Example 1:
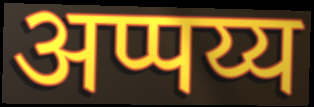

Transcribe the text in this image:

अप्पय्य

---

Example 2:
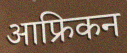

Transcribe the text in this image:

आफ्रिकन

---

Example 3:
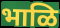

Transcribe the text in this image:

भाळि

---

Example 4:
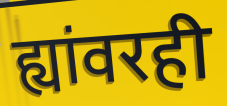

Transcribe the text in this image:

ह्यांवरही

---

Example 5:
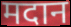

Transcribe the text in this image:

मदान